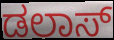
ಡಲಾಸ್